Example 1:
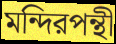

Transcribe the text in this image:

মন্দিরপন্থী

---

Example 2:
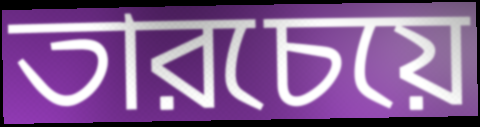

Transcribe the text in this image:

তারচেয়ে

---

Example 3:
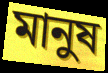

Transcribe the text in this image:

মানুষ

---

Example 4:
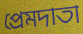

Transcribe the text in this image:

প্রেমদাতা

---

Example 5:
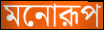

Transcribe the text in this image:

মনোরূপ